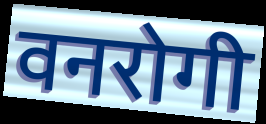
वनरोगी